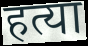
हत्‍या